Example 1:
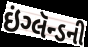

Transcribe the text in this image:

ઇંગ્લૅન્ડની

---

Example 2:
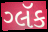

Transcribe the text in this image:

ગ્લૅક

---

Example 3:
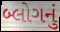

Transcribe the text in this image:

બ્લોગનું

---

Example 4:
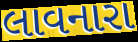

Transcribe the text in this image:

લાવનારા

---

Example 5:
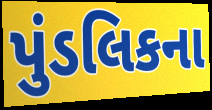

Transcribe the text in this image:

પુંડલિકના